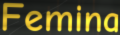
Femina